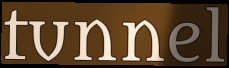
tunnel